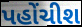
પહોંચીશ